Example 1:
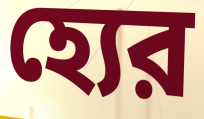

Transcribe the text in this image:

হ্যের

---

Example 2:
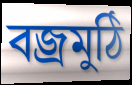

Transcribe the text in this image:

বজ্রমুঠি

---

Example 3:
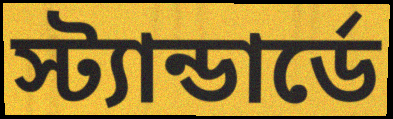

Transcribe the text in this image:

স্ট্যান্ডার্ডে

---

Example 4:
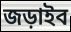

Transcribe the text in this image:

জড়াইব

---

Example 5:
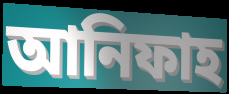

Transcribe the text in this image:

আনিফাহ